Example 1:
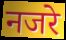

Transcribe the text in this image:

नजरे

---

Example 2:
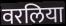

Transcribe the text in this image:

वरलिया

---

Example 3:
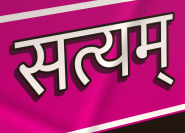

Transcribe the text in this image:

सत्यम्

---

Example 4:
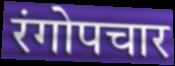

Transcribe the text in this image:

रंगोपचार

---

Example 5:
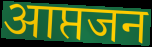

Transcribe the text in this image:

आप्तजन